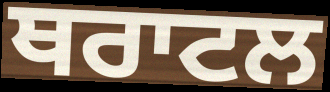
ਥਰਾਟਲ